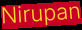
Nirupan